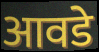
आवडे